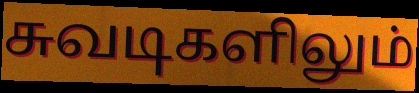
சுவடிகளிலும்